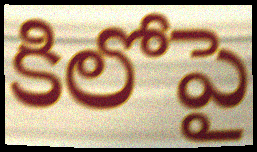
కిలోపై